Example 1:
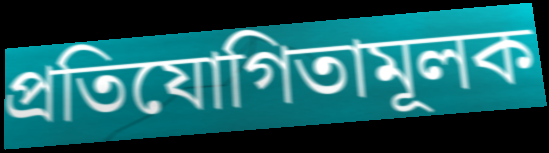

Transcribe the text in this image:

প্ৰতিযোগিতামূলক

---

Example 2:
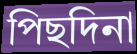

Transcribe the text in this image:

পিছদিনা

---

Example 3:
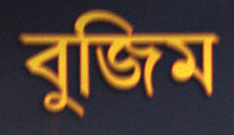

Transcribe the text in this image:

বুজিম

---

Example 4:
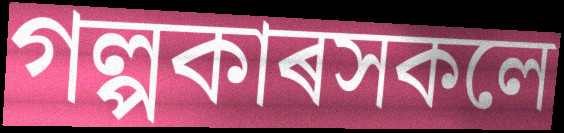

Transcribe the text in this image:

গল্পকাৰসকলে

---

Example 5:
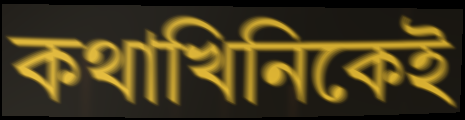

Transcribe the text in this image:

কথাখিনিকেই